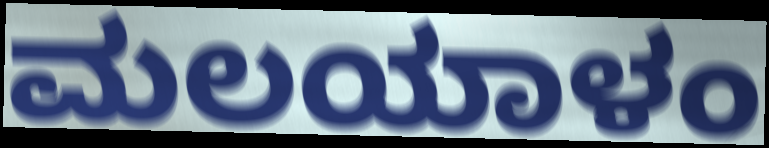
ಮಲಯಾಳಂ